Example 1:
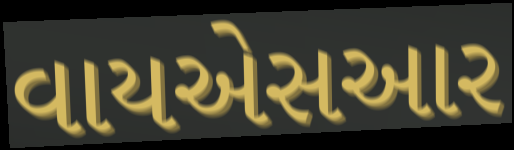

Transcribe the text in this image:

વાયએસઆર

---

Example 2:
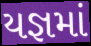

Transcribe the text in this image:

યજ્ઞમાં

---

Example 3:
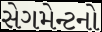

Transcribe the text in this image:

સેગમેન્ટનો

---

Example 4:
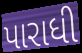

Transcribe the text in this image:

પારાધી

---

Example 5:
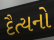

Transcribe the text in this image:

દૈત્યનો